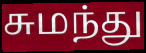
சுமந்து